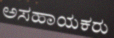
ಅಸಹಾಯಕರು